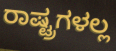
ರಾಷ್ಟ್ರಗಳಲ್ಲ